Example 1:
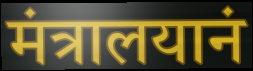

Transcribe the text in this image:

मंत्रालयानं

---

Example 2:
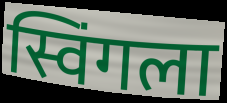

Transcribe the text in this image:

स्विंगला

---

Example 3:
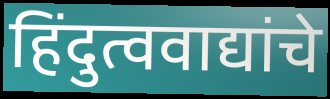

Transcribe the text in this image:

हिंदुत्ववाद्यांचे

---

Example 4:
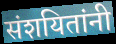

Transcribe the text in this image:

संशयितांनी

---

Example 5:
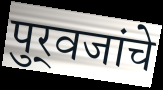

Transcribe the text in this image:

पुर्वजांचे